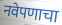
नवेपणाचा